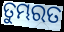
ତୁମ୍ଭରତ